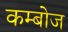
कम्बोज